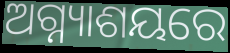
ଅଗ୍ନ୍ୟାଶୟରେ